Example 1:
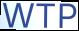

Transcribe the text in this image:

WTP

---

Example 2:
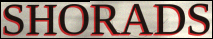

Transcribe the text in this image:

SHORADS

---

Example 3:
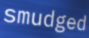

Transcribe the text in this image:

smudged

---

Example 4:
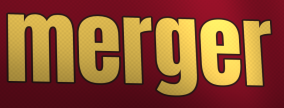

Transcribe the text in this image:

merger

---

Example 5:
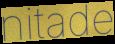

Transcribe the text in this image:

nitade